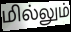
மில்லும்